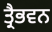
ਤ੍ਰੈਭਵਨ